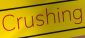
Crushing